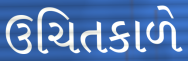
ઉચિતકાળે